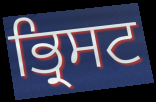
ਭ੍ਰਿਸਟ